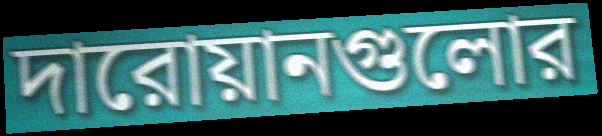
দারোয়ানগুলোর